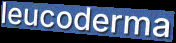
leucoderma